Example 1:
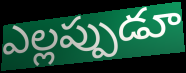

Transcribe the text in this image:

ఎల్లప్పుడూ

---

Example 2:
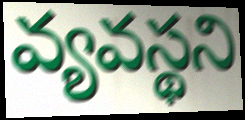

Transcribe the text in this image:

వ్యవస్థని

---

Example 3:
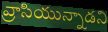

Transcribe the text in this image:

వ్రాసియున్నాడని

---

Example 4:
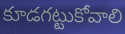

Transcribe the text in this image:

కూడగట్టుకోవాలి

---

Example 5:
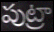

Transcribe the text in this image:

పుట్రా